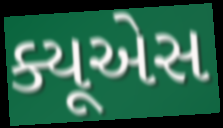
ક્યૂએસ